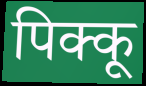
पिक्कू